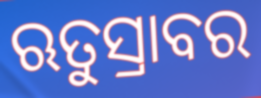
ଋତୁସ୍ରାବର